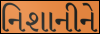
નિશાનીને